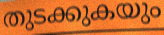
തുടക്കുകയും